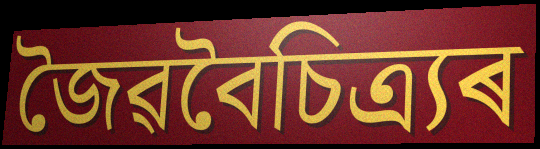
জৈৱবৈচিত্ৰ্যৰ